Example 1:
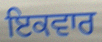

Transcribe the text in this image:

ਇਕਵਾਰ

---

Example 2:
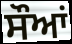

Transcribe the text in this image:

ਸੌਆਂ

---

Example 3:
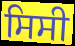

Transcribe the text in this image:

ਸਿਸੀ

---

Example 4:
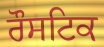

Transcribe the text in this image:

ਰੌਸਟਿਕ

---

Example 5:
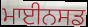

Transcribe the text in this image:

ਮਾਈਨਸਡ